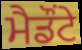
ਮੈਡੌਂਟੇ